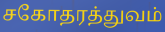
சகோதரத்துவம்